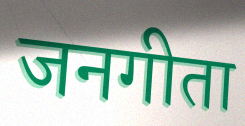
जनगीता